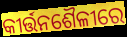
କୀର୍ତ୍ତନଶୈଳୀରେ